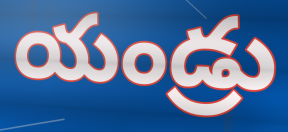
యండ్రు